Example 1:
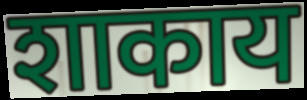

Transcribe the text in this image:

शाकाय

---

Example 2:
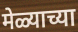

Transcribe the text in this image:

मेळ्याच्या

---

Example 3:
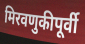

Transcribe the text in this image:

मिरवणुकीपूर्वी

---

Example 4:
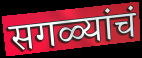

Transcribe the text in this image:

सगळ्यांचं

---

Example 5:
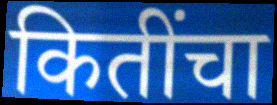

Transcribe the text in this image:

कितींचा